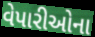
વેપારીઓના